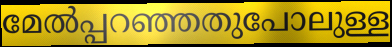
മേൽപ്പറഞ്ഞതുപോലുള്ള